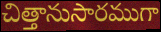
చిత్తానుసారముగా